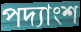
পদ্যাংশ